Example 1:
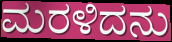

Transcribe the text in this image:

ಮರಳಿದನು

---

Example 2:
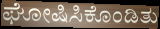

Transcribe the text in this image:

ಘೋಷಿಸಿಕೊಂಡಿತು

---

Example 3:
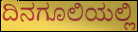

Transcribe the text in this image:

ದಿನಗೂಲಿಯಲ್ಲಿ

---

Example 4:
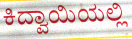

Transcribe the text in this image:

ಕಿದ್ವಾಯಿಯಲ್ಲಿ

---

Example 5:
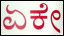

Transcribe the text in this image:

ಏಕೇ